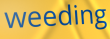
weeding